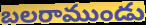
బలరాముండు